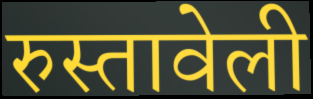
रुस्तावेली